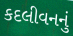
કદલીવનનું